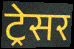
ट्रेसर